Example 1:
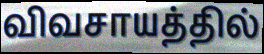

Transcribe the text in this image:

விவசாயத்தில்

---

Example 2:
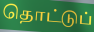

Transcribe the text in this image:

தொட்டுப்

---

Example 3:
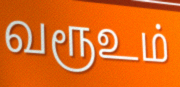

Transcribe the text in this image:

வரூஉம்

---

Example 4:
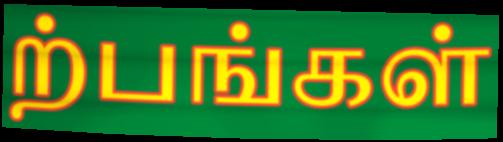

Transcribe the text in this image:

ற்பங்கள்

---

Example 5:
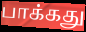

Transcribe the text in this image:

பாக்கது